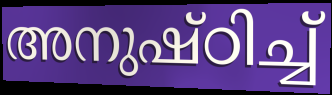
അനുഷ്ഠിച്ച്